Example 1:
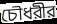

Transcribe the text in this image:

চৌধরীর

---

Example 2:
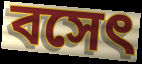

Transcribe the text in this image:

বসেৎ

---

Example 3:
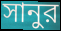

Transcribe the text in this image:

সানুর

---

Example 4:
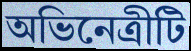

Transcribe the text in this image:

অভিনেত্রীটি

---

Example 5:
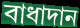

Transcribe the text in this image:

বাধাদান